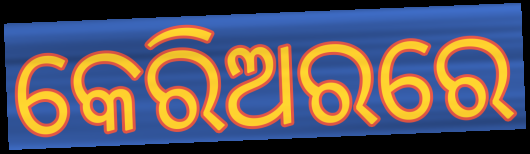
କେରିଅରରେ